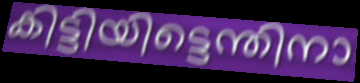
കിട്ടിയിട്ടെന്തിനാ